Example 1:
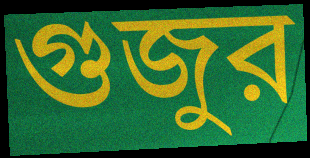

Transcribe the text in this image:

গুজুর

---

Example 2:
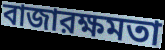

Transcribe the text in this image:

বাজারক্ষমতা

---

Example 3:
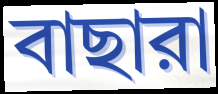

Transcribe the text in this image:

বাছারা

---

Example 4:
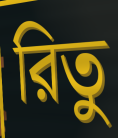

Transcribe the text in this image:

রিতু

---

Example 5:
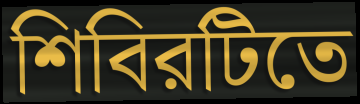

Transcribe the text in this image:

শিবিরটিতে